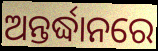
ଅନ୍ତର୍ଦ୍ଧାନରେ